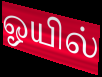
ஓயில்